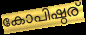
കോപിഷ്ഠര്